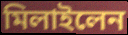
মিলাইলেন